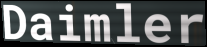
Daimler